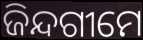
ଜିନ୍ଦଗୀମେ